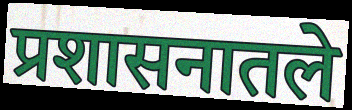
प्रशासनातले